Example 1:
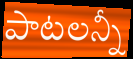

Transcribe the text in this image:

పాటలన్నీ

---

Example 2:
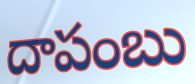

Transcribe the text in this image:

దాపంబు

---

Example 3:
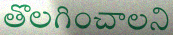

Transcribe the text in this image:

తొలగించాలని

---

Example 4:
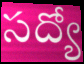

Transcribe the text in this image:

సద్యో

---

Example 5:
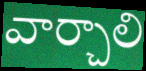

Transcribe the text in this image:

వార్చాలి